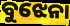
ବୁଝେନା